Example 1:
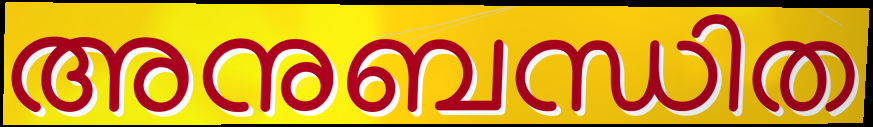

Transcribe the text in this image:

അനുബന്ധിത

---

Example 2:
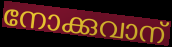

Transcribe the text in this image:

നോക്കുവാന്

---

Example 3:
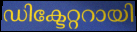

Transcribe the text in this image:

ഡിക്ടേറ്ററായി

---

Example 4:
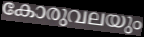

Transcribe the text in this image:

കോരുവലയും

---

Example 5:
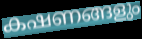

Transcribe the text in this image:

കഷണങ്ങളും